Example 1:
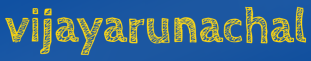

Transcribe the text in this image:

vijayarunachal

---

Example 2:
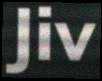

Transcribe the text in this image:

Jiv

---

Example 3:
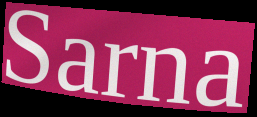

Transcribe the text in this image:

Sarna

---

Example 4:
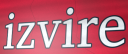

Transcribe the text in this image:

izvire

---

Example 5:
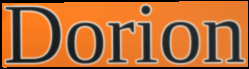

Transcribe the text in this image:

Dorion